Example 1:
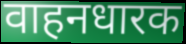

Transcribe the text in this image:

वाहनधारक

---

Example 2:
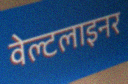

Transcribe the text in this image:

वेल्टलाइनर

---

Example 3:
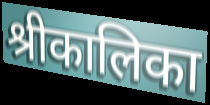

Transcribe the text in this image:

श्रीकालिका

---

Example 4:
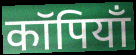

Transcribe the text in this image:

कॉपियाँ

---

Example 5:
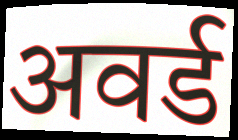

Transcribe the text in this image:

अवर्ड